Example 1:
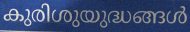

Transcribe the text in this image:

കുരിശുയുദ്ധങ്ങൾ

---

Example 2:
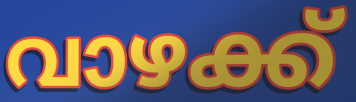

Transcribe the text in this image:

വാഴക്ക്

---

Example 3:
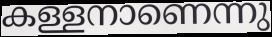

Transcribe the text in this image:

കള്ളനാണെന്നു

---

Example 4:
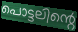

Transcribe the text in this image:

പൊട്ടലിന്റെ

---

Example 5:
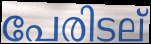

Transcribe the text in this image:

പേരിടല്